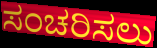
ಸಂಚರಿಸಲು